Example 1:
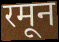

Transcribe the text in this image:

रमून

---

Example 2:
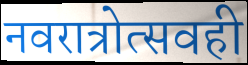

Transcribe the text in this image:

नवरात्रोत्सवही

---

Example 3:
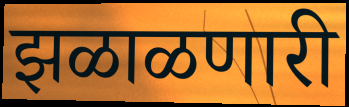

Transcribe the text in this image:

झळाळणारी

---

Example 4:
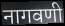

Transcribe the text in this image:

नागवणी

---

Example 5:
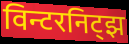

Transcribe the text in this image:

विन्टरनिट्झ